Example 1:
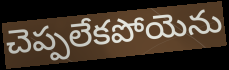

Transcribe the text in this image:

చెప్పలేకపోయెను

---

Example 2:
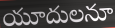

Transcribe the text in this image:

యూదులనూ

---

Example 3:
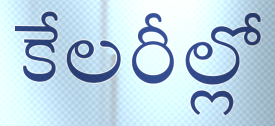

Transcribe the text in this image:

కేలరీల్లో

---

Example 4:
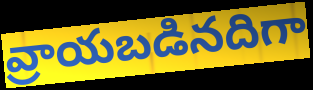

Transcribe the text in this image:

వ్రాయబడినదిగా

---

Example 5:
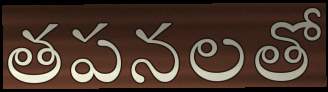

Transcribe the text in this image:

తపనలతో